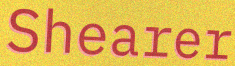
Shearer